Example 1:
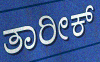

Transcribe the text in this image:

ತಾರೀಕ್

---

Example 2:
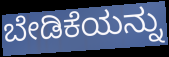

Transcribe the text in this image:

ಬೇಡಿಕೆಯನ್ನು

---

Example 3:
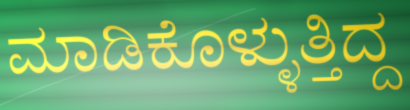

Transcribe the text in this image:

ಮಾಡಿಕೊಳ್ಳುತ್ತಿದ್ದ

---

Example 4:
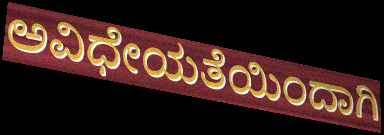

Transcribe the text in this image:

ಅವಿಧೇಯತೆಯಿಂದಾಗಿ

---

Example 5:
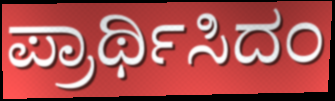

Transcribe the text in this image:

ಪ್ರಾರ್ಥಿಸಿದಂ